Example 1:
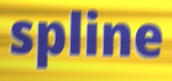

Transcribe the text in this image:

spline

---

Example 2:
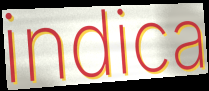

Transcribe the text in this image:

indica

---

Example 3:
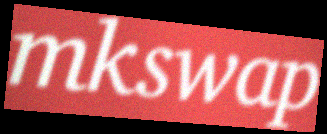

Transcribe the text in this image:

mkswap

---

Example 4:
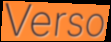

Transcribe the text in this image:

Verso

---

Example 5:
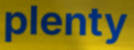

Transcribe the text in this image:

plenty